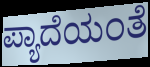
ಪ್ಯಾದೆಯಂತೆ